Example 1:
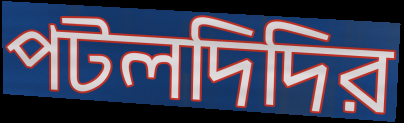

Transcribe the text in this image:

পটলদিদির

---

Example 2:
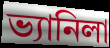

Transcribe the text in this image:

ভ্যানিলা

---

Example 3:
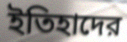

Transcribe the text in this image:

ইতিহাদের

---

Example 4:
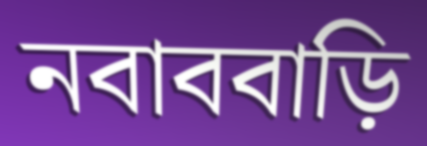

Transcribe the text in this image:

নবাববাড়ি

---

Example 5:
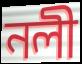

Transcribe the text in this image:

নলী